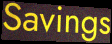
Savings